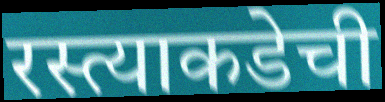
रस्त्याकडेची